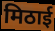
मिठाई